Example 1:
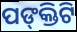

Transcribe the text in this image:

ପଙ୍‌କ୍ତିଟି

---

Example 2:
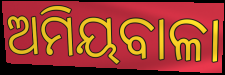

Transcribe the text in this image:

ଅମିୟବାଳା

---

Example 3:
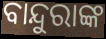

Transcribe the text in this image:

ବାନ୍ଦୁରାଙ୍କ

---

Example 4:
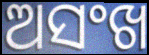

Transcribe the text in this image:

ଅସଂଖ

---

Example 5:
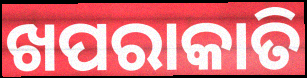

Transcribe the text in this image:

ଖପରାକାତି